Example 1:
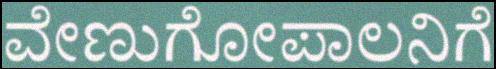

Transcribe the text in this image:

ವೇಣುಗೋಪಾಲನಿಗೆ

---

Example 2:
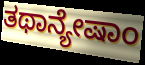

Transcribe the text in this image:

ತಥಾನ್ಯೇಷಾಂ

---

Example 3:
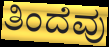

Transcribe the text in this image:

ತಿಂದೆವು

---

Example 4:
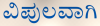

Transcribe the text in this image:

ವಿಪುಲವಾಗಿ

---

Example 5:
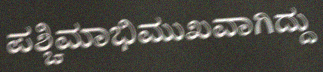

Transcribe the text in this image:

ಪಶ್ಚಿಮಾಭಿಮುಖವಾಗಿದ್ದು